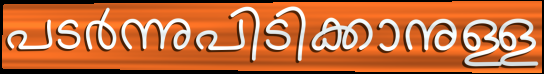
പടർന്നുപിടിക്കാനുള്ള